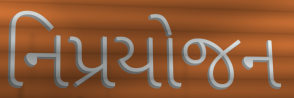
નિપ્રયોજન